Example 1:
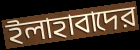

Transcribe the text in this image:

ইলাহাবাদের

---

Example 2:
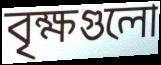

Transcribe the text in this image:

বৃক্ষগুলো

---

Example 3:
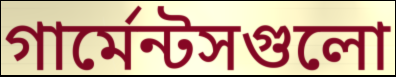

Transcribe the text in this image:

গার্মেন্টসগুলো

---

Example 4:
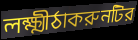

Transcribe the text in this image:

লক্ষ্মীঠাকরুনটির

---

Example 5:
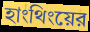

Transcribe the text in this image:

হাংথিংয়ের